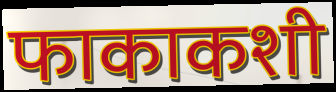
फाकाकशी